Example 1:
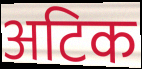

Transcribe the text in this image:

अटिक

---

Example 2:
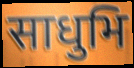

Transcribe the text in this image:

साधुभि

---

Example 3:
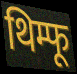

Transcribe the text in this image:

थिम्फू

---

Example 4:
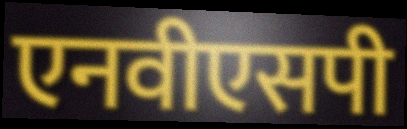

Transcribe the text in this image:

एनवीएसपी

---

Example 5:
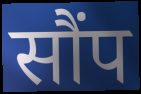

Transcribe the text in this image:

सौंप